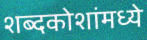
शब्दकोशांमध्ये